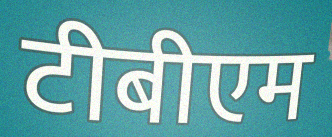
टीबीएम